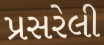
પ્રસરેલી